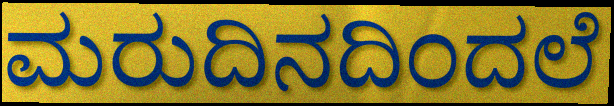
ಮರುದಿನದಿಂದಲೆ